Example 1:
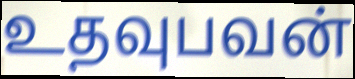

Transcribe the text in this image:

உதவுபவன்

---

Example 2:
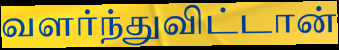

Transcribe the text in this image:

வளர்ந்துவிட்டான்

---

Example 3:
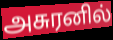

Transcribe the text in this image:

அசுரனில்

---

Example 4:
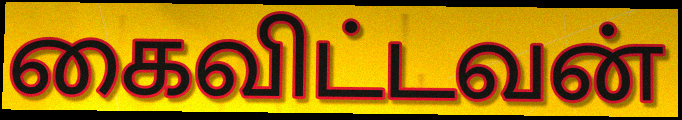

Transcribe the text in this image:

கைவிட்டவன்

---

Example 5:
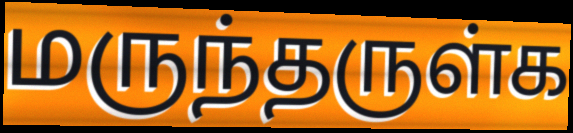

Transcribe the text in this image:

மருந்தருள்க